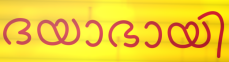
ദയാഭായി